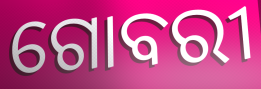
ଗୋବରୀ